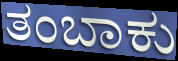
ತಂಬಾಕು